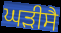
ਘੜੀਸੈ